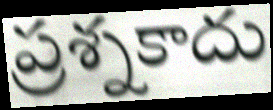
ప్రశ్నకాదు